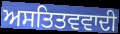
ਅਸਤਿਤਵਵਾਦੀ